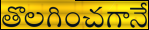
తొలగించగానే